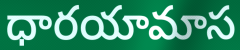
ధారయామాస